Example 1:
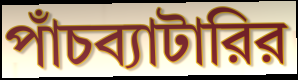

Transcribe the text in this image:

পাঁচব্যাটারির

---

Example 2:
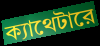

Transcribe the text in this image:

ক্যাথেটারে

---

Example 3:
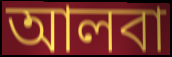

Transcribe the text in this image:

আলবা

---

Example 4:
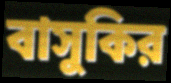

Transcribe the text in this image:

বাসুকির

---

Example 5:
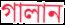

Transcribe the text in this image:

গালান